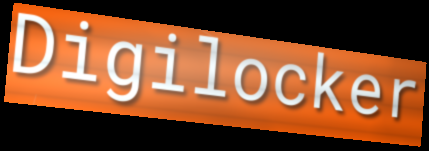
Digilocker